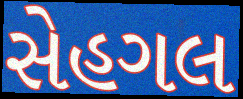
સેહગલ